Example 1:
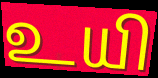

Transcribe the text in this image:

உயி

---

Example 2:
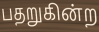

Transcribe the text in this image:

பதறுகின்ற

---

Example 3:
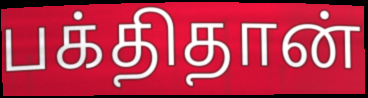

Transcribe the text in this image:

பக்திதான்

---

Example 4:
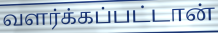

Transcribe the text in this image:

வளர்க்கப்பட்டான்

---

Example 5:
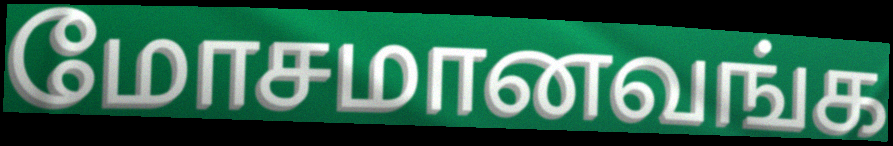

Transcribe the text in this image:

மோசமானவங்க